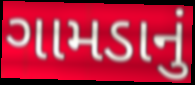
ગામડાનું